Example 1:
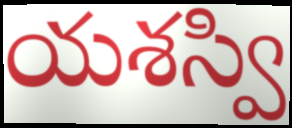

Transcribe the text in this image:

యశస్వి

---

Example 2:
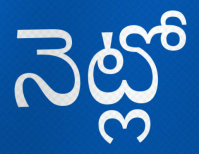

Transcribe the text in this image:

నెట్లో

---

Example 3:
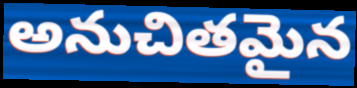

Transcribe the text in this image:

అనుచితమైన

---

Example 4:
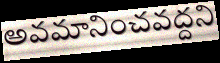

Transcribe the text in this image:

అవమానించవద్దని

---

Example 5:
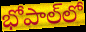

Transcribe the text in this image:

భోపాల్‌లో